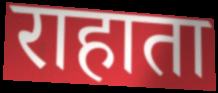
राहाता